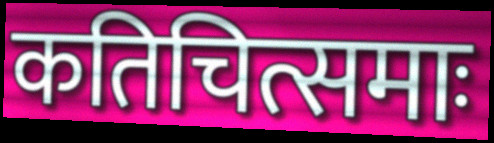
कतिचित्समाः